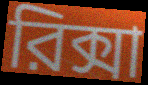
রিক্সা